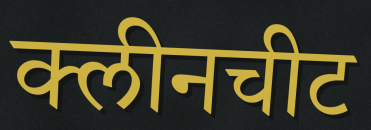
क्लीनचीट